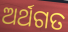
ଅର୍ଥଗତ